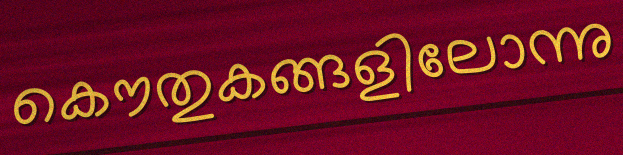
കൌതുകങ്ങളിലോന്നു